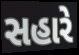
સહારે